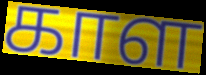
காள